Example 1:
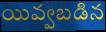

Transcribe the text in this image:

యివ్వబడిన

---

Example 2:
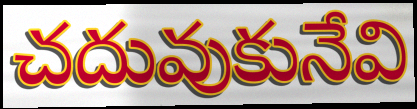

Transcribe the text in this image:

చదువుకునేవి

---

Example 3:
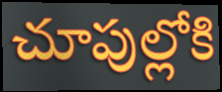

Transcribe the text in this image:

చూపుల్లోకి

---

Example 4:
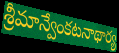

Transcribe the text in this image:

శ్రీమాన్వేంకటనాథార్య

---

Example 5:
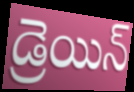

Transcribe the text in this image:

డ్రెయిన్